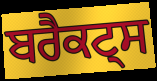
ਬਰੈਕਟ੍ਸ